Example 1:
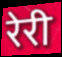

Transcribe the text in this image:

रेरी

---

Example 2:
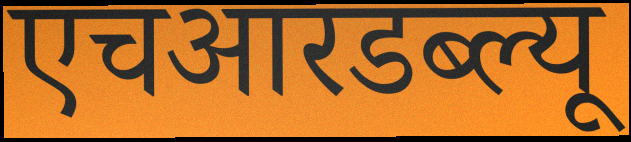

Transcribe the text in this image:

एचआरडब्ल्यू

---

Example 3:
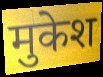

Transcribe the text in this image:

मुकेश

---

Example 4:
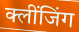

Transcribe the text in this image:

क्लींजिंग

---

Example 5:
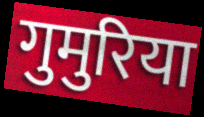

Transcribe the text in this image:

गुमुरिया